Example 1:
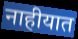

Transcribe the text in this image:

नाहीयात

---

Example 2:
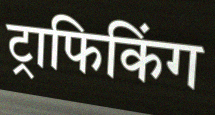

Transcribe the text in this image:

ट्राफिकिंग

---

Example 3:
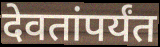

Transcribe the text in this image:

देवतांपर्यंत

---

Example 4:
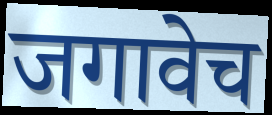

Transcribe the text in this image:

जगावेच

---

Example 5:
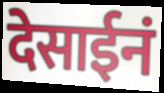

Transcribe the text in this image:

देसाईनं